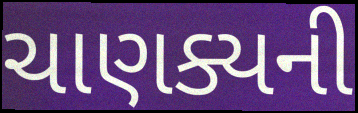
ચાણક્યની